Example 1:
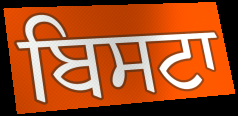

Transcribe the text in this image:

ਬਿਸਟਾ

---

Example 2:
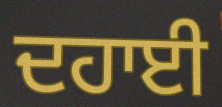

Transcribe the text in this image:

ਦਹਾਈ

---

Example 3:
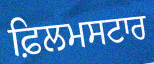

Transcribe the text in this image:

ਫ਼ਿਲਮਸਟਾਰ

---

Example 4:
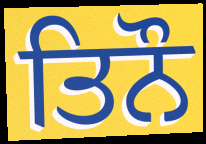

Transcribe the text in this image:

ਤਿਨੌ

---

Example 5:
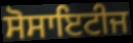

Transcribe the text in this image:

ਸੋਸਾਇਟੀਜ